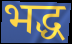
भद्ध